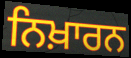
ਨਿਖ਼ਾਰਨ